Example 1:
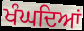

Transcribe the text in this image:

ਖੰਘਦਿਆਂ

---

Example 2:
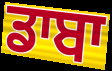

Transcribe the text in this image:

ਡਾਬਾ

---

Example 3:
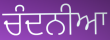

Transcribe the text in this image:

ਚੰਦਨੀਆ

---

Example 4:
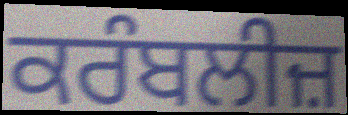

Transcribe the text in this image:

ਕਰੰਬਲੀਜ਼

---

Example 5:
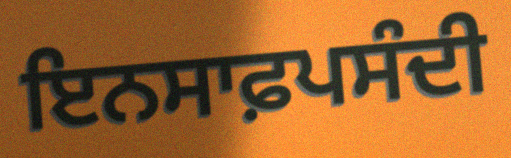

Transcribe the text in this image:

ਇਨਸਾਫ਼ਪਸੰਦੀ